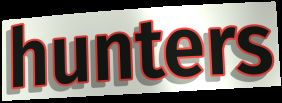
hunters